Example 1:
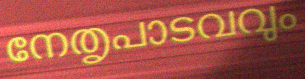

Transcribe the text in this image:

നേതൃപാടവവും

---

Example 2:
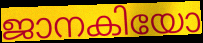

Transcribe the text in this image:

ജാനകിയോ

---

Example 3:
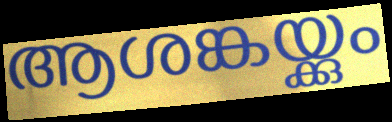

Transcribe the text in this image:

ആശങ്കയ്ക്കും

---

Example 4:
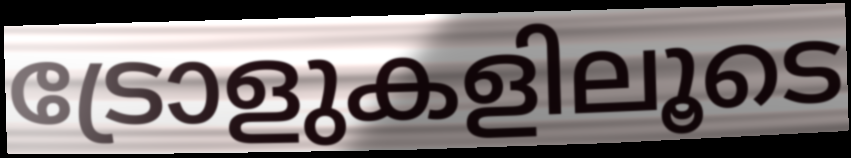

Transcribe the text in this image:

ട്രോളുകളിലൂടെ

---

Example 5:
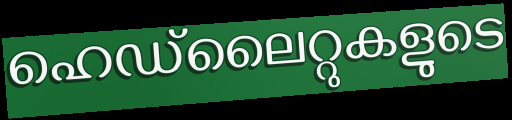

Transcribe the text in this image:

ഹെഡ്‌ലൈറ്റുകളുടെ